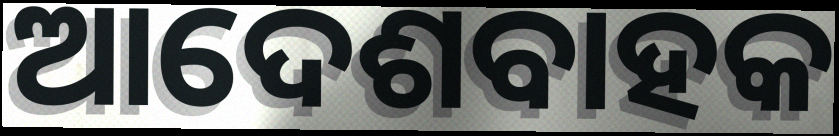
ଆଦେଶବାହକ